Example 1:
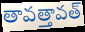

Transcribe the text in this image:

తావత్తావత్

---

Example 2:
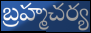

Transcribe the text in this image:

బ్రహ్మచర్య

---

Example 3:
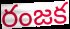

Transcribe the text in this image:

రంజక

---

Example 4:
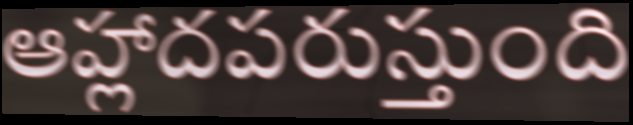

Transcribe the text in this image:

ఆహ్లాదపరుస్తుంది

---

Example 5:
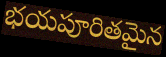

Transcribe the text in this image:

భయపూరితమైన